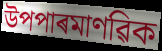
উপপাৰমাণৱিক